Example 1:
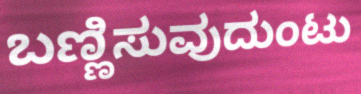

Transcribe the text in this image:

ಬಣ್ಣಿಸುವುದುಂಟು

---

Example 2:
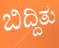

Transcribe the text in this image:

ಬಿದ್ದಿತು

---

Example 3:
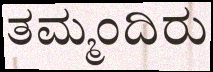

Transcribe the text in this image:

ತಮ್ಮಂದಿರು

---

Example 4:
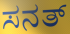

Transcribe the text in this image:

ಸನತ್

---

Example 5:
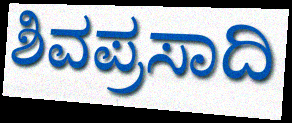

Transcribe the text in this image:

ಶಿವಪ್ರಸಾದಿ